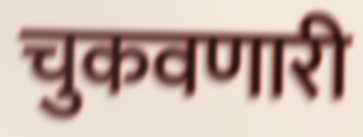
चुकवणारी